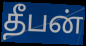
தீபன்